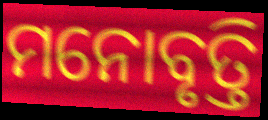
ମନୋବୃତ୍ତି